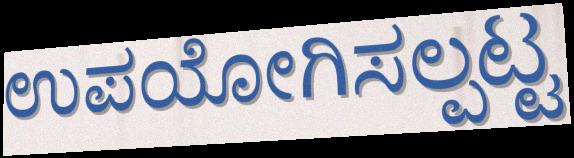
ಉಪಯೋಗಿಸಲ್ಪಟ್ಟ